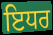
ਇਧਰ